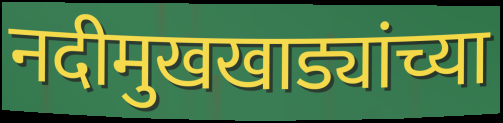
नदीमुखखाड्यांच्या